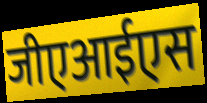
जीएआईएस